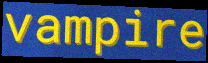
vampire